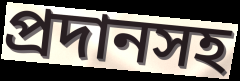
প্রদানসহ